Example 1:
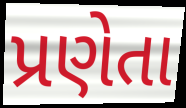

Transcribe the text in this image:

પ્રણેતા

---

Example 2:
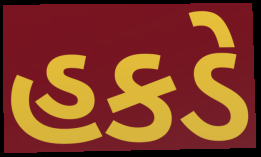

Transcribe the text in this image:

હકડે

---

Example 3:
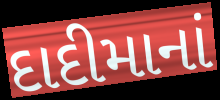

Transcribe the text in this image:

દાદીમાનાં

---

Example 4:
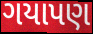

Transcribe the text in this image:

ગયાપણ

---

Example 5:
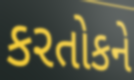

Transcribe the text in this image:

કરતોકને